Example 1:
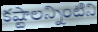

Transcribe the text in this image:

కష్టాలన్నింటిని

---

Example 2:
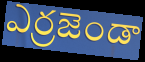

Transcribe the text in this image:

ఎర్రజెండా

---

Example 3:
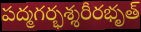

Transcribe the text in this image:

పద్మగర్భశ్శరీరభృత్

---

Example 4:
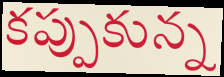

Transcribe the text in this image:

కప్పుకున్న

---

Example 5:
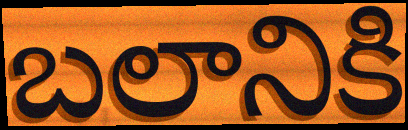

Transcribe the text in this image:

బలానికి